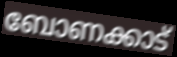
ബോണക്കാട്